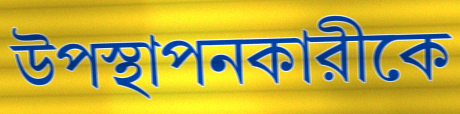
উপস্থাপনকারীকে